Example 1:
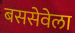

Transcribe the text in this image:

बससेवेला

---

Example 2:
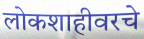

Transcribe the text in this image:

लोकशाहीवरचे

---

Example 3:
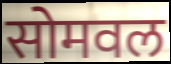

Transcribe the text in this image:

सोमवल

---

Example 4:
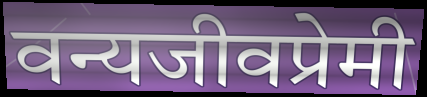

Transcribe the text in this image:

वन्यजीवप्रेमी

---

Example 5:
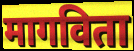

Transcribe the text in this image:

मागविता